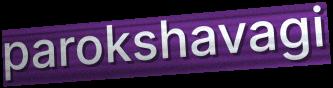
parokshavagi